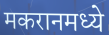
मकरानमध्ये